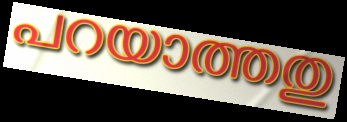
പറയാത്തതു